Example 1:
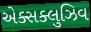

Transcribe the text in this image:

એક્સક્લુઝિવ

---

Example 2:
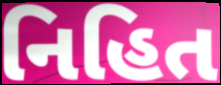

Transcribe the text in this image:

નિહિત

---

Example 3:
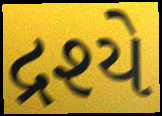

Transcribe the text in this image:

દ્રશ્યે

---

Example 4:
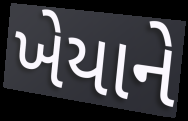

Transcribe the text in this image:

ખેયાને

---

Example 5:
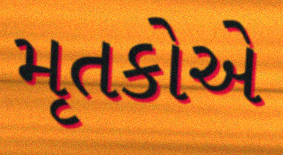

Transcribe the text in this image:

મૃતકોએ